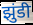
झुंडी